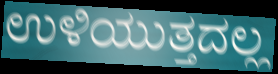
ಉಳಿಯುತ್ತದಲ್ಲ